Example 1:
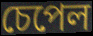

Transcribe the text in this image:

চেপেল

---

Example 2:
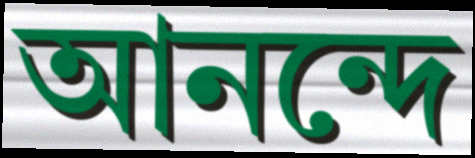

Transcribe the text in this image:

আনন্দে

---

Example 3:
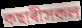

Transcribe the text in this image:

কছাৰীসকল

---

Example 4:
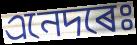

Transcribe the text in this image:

এনেদৰেঃ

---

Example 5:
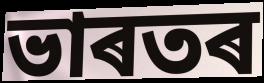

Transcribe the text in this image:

ভাৰতৰ